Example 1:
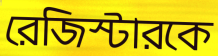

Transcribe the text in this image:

রেজিস্টারকে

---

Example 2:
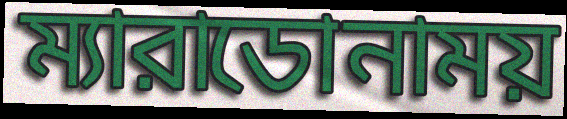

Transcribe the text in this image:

ম্যারাডোনাময়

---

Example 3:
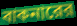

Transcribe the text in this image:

বাকনারের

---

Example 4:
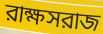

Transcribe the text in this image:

রাক্ষসরাজ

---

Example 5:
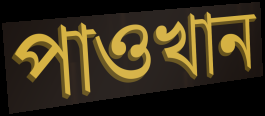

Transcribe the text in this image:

পাওখান